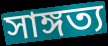
সাঙ্গত্য